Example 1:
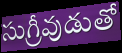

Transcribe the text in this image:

సుగ్రీవుడుతో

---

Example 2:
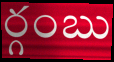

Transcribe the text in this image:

ర్గంబు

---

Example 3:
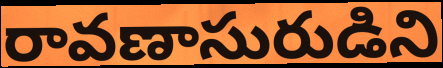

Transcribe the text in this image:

రావణాసురుడిని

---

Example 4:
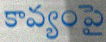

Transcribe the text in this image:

కావ్యంపై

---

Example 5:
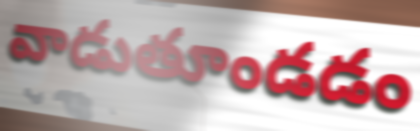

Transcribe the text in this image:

వాడుతూండడం